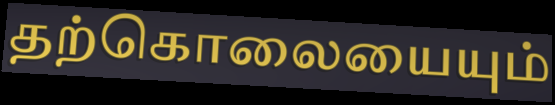
தற்கொலையையும்